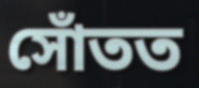
সোঁতত